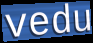
vedu